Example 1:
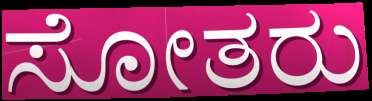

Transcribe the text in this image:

ಸೋತರು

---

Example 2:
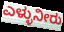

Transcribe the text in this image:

ಎಳ್ಳುನೀರು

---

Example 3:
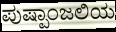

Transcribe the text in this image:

ಪುಷ್ಪಾಂಜಲಿಯ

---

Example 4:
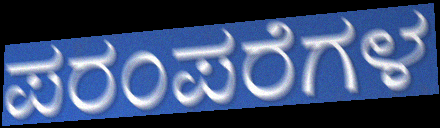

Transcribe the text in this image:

ಪರಂಪರೆಗಳ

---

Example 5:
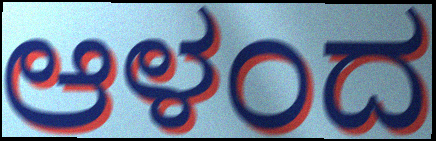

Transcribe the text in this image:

ಆಳಂದ